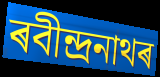
ৰবীন্দ্ৰনাথৰ